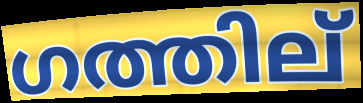
ഗത്തില്